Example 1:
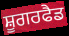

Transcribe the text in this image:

ਸ਼ੂਗਰਫੈਡ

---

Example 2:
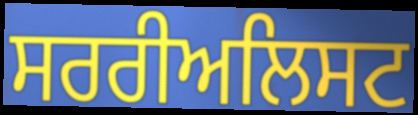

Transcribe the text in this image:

ਸਰਰੀਅਲਿਸਟ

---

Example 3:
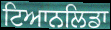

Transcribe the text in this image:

ਟਿਆਨਲਿਡਾ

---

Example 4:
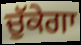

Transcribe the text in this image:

ਚੁੱਕੇਗਾ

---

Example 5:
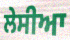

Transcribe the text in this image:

ਲੇਸੀਆ